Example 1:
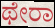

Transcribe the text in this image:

ಥೇರಾ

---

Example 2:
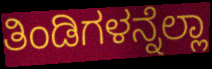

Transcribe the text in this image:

ತಿಂಡಿಗಳನ್ನೆಲ್ಲಾ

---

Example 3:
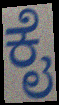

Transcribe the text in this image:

ಕೈ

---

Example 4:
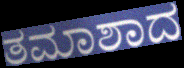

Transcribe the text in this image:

ತಮಾಶಾದ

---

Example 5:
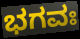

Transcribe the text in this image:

ಭಗವಃ